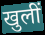
खुलीं